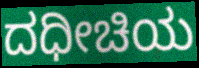
ದಧೀಚಿಯ